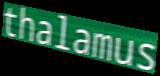
thalamus